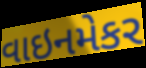
વાઇનમેકર